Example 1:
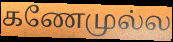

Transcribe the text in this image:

கணேமுல்ல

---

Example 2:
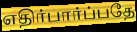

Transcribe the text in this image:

எதிர்பார்ப்பதே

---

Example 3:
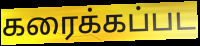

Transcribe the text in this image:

கரைக்கப்பட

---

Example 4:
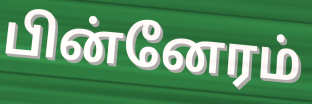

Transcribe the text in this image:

பின்னேரம்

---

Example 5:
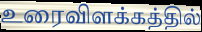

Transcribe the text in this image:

உரைவிளக்கத்தில்